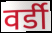
वर्डी